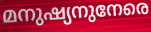
മനുഷ്യനുനേരെ